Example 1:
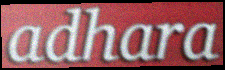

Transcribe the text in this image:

adhara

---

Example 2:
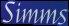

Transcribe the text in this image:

Simms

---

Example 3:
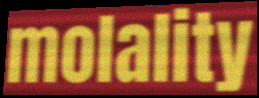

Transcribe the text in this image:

molality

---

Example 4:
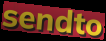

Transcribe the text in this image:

sendto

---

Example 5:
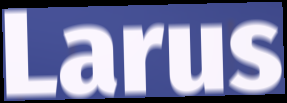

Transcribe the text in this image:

Larus